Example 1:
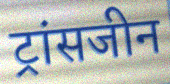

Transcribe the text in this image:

ट्रांसजीन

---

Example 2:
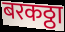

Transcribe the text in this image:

बरकठ्ठा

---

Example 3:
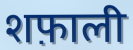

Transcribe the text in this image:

शफ़ाली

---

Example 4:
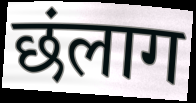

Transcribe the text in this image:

छंलाग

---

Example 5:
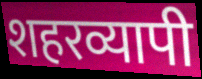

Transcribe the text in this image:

शहरव्यापी